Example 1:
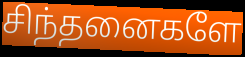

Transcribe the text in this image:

சிந்தனைகளே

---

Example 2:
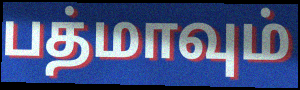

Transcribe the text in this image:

பத்மாவும்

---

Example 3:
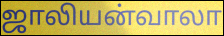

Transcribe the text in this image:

ஜாலியன்வாலா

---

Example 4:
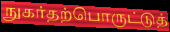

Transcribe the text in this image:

நுகர்தற்பொருட்டுத்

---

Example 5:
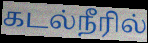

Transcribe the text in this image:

கடல்நீரில்